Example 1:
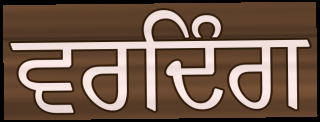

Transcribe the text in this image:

ਵਰਦਿੰਗ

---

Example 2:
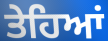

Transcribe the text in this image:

ਤੇਹਿਆਂ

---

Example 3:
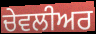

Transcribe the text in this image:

ਚੇਵਲੀਅਰ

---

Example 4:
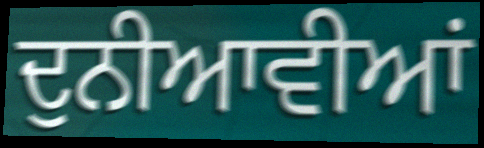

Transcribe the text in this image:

ਦੁਨੀਆਵੀਆਂ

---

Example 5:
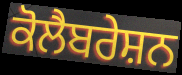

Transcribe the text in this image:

ਕੋਲੈਬਰੇਸ਼ਨ